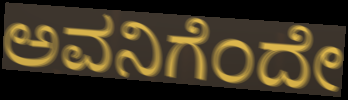
ಅವನಿಗೆಂದೇ